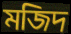
মজিদ